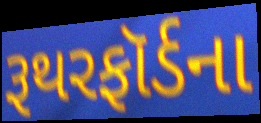
રૂથરફૉર્ડના